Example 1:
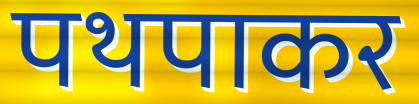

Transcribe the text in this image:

पथपाकर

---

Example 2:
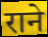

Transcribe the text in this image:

राने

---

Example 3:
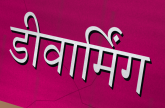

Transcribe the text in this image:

डीवार्मिंग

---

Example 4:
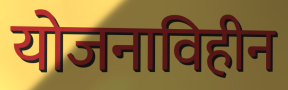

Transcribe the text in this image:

योजनाविहीन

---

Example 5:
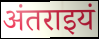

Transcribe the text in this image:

अंतराइयं